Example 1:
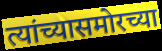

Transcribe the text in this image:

त्यांच्यासमोरच्या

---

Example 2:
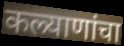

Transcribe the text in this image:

कल्याणांचा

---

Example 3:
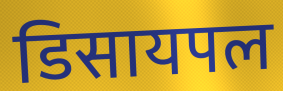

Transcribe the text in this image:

डिसायपल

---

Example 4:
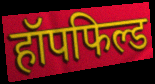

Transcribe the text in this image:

हॉपफिल्ड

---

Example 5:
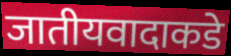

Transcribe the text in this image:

जातीयवादाकडे